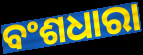
ବଂଶଧାରା